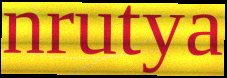
nrutya